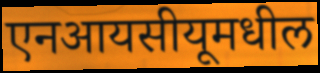
एनआयसीयूमधील